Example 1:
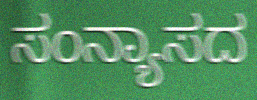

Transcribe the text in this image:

ಸಂನ್ಯಾಸದ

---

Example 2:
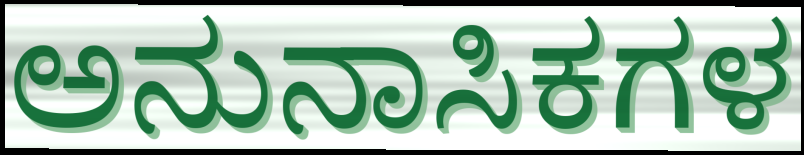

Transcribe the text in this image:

ಅನುನಾಸಿಕಗಳ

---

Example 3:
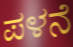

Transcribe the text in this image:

ಪಳನೆ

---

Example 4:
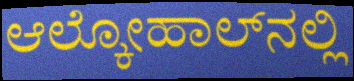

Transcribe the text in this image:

ಆಲ್ಕೋಹಾಲ್‌ನಲ್ಲಿ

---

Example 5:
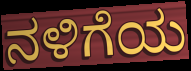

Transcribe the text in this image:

ನಳಿಗೆಯ